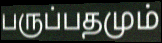
பருப்பதமும்